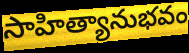
సాహిత్యానుభవం